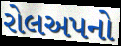
રોલઅપનો